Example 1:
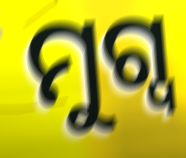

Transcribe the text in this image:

ମୁଗ୍ୱ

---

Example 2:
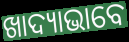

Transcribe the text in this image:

ଖାଦ୍ୟାଭାବେ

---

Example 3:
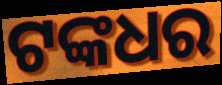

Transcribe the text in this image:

ଟଙ୍କଧର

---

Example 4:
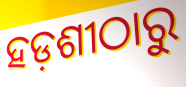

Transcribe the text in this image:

ହଡ଼ଶୀଠାରୁ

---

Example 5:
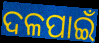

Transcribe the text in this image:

ଦଳପାଇଁ